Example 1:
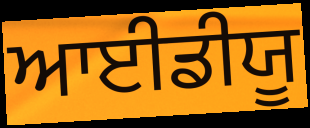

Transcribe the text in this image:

ਆਈਡੀਯੂ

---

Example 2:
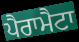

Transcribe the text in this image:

ਪੈਰਾਮੈਟਾ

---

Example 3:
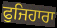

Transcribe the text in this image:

ਫੁਜਿਹਾਰਾ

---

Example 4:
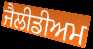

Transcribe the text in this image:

ਜੈਲੀਡੀਅਮ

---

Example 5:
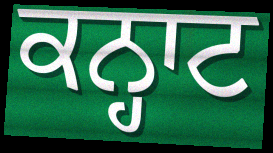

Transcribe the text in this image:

ਕਨ੍ਹਾਟ